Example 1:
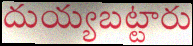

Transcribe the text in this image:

దుయ్యబట్టారు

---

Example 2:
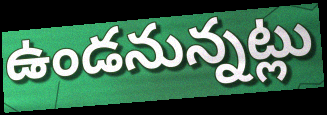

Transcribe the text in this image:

ఉండనున్నట్లు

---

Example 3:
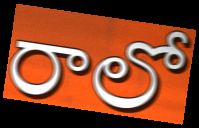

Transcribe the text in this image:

రాలో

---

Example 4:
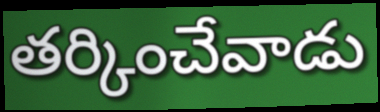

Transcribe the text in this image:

తర్కించేవాడు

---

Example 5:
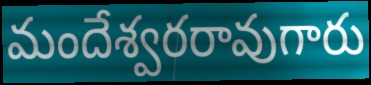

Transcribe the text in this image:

మందేశ్వరరావుగారు